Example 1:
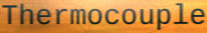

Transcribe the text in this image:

Thermocouple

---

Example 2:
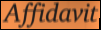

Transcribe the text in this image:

Affidavit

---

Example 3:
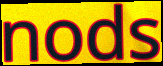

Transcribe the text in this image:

nods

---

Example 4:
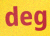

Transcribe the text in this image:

deg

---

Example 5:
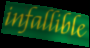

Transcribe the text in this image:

infallible